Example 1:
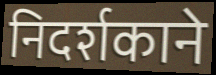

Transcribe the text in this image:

निदर्शकाने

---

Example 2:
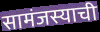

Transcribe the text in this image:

सामंजस्याची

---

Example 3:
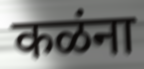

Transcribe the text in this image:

कळंना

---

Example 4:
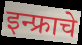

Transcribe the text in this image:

इन्फ्राचे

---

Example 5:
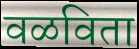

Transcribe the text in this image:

वळविता